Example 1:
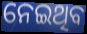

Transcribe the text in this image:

ନେଇଥିବ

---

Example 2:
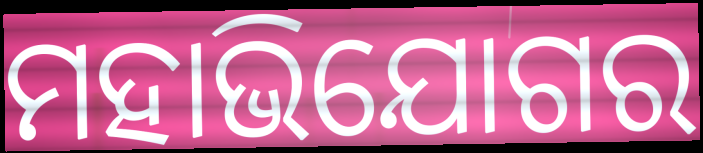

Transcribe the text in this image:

ମହାଭିଯୋଗର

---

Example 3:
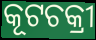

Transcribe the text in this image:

କୂଟଚକ୍ରୀ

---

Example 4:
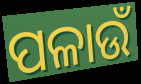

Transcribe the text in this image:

ପଳାଉଁ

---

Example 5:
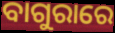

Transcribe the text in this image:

ବାଗୁରାରେ